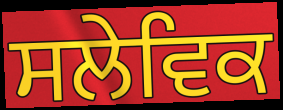
ਸਲੇਵਿਕ